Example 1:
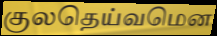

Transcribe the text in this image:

குலதெய்வமென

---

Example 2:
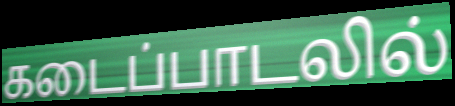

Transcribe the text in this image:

கடைப்பாடலில்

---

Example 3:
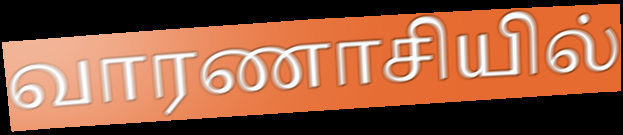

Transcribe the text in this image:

வாரணாசியில்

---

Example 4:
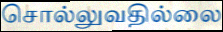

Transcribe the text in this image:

சொல்லுவதில்லை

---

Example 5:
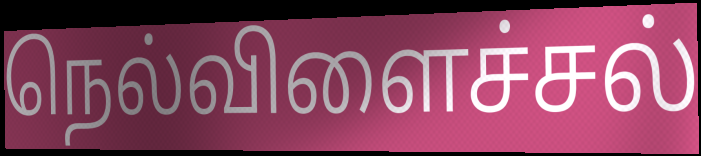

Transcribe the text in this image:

நெல்விளைச்சல்